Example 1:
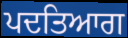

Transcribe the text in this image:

ਪਦਤਿਆਗ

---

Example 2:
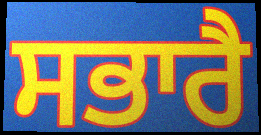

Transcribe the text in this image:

ਸਭਾਰੈ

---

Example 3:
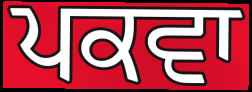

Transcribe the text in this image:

ਪਕਵਾ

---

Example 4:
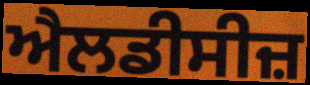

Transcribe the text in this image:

ਐਲਡੀਸੀਜ਼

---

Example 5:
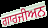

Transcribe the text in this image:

ਗਾਰਜੀਅਨ